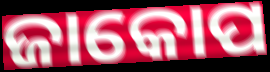
ଜାକୋପ